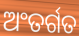
ଅଂତର୍ଗତ